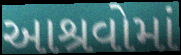
આશ્રવોમાં